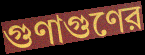
গুণাগুণের